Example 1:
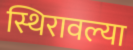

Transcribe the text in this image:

स्थिरावल्या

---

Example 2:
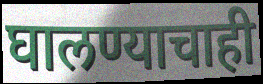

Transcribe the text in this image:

घालण्याचाही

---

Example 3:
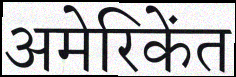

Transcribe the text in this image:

अमेरिकेंत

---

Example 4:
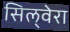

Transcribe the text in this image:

सिल्वेरा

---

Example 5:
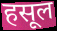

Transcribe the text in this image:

हसूल